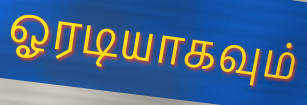
ஓரடியாகவும்